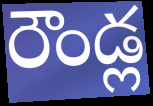
రౌండ్ల